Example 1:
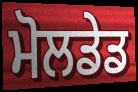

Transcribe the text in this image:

ਮੋਲਡੇਡ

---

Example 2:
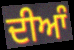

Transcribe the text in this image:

ਦੀਆੰ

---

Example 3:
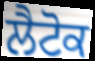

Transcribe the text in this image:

ਲੈਟੋਕ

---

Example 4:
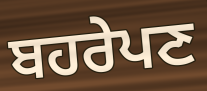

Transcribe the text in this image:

ਬਹਰੇਪਣ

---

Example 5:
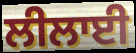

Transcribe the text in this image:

ਲੀਲਾਈ